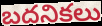
బదనికలు